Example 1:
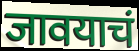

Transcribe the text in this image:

जावयाचं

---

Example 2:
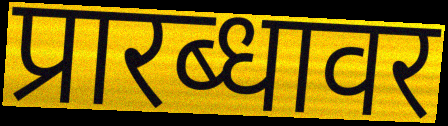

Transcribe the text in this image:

प्रारब्धावर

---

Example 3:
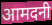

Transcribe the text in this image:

आमदनी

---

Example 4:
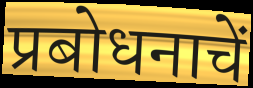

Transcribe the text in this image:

प्रबोधनाचें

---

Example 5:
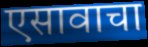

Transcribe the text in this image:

एसावाचा